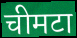
चीमटा